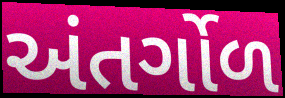
અંતર્ગોળ